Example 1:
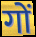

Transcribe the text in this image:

गों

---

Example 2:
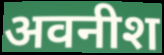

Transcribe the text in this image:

अवनीश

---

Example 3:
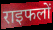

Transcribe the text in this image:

राइफलों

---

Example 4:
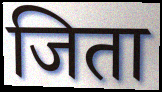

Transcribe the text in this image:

जिता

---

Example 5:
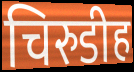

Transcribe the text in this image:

चिरुडीह